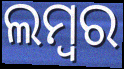
ଲମ୍ବର